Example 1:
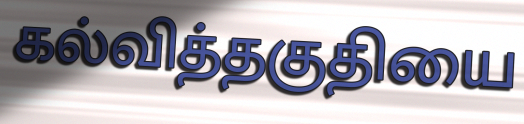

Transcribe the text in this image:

கல்வித்தகுதியை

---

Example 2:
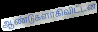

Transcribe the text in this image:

ஆண்டுகளாகிவிட்டன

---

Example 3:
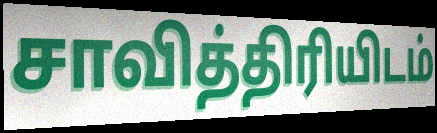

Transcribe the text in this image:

சாவித்திரியிடம்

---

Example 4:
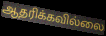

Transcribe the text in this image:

ஆதரிக்கவில்லை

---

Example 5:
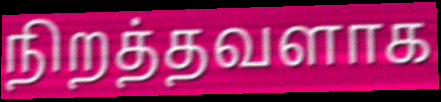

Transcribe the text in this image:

நிறத்தவளாக